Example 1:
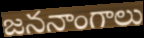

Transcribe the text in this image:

జననాంగాలు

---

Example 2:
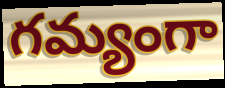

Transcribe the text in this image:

గమ్యంగా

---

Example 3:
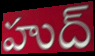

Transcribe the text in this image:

హుద్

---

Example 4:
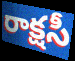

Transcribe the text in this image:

రాక్షసీ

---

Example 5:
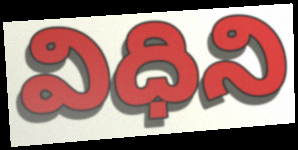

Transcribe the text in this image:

విధిని